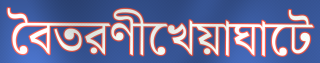
বৈতরণীখেয়াঘাটে